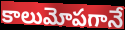
కాలుమోపగానే